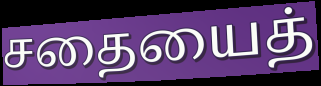
சதையைத்